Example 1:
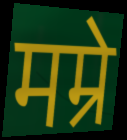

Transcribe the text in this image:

मम्रे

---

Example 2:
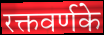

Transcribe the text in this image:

रक्तवर्णके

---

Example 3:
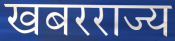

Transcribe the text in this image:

खबरराज्य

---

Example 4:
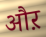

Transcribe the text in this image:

औऱ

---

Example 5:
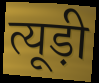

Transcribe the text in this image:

त्यूड़ी